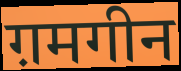
ग़मगीन